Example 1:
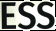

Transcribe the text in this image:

ESS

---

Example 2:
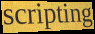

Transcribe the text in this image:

scripting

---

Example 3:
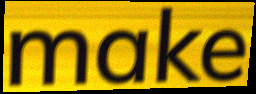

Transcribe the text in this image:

make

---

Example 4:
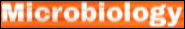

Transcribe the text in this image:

Microbiology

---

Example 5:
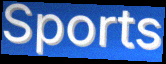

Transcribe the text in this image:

Sports